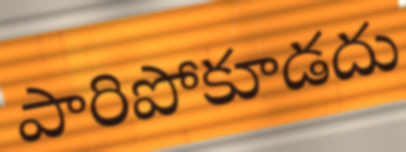
పారిపోకూడదు